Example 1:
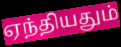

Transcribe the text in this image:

ஏந்தியதும்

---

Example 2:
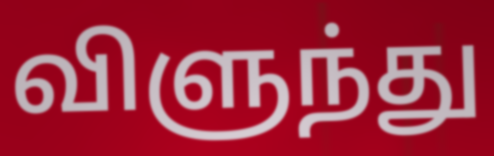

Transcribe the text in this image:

விளுந்து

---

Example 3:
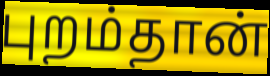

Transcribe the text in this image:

புறம்தான்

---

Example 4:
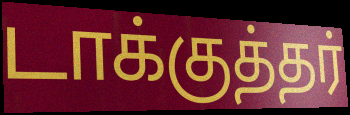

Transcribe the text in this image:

டாக்குத்தர்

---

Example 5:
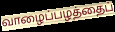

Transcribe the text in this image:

வாழைப்பழத்தைப்